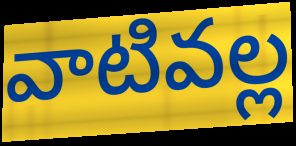
వాటివల్ల